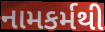
નામકર્મથી